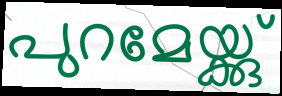
പുറമേയ്ക്കു്